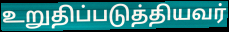
உறுதிப்படுத்தியவர்